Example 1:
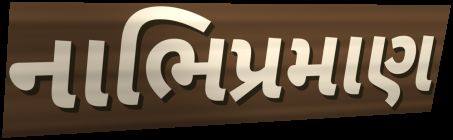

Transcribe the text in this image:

નાભિપ્રમાણ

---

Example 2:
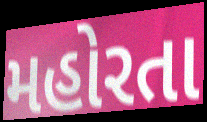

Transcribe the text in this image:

મહોરતા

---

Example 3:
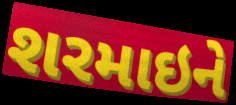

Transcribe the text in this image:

શરમાઇને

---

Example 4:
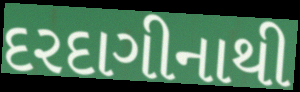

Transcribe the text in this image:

દરદાગીનાથી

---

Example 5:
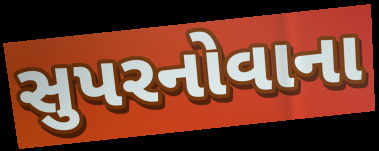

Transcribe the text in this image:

સુપરનોવાના